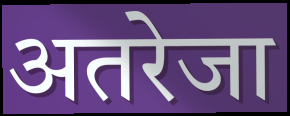
अतरेजा